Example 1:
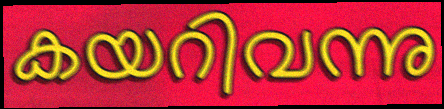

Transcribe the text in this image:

കയറിവന്നു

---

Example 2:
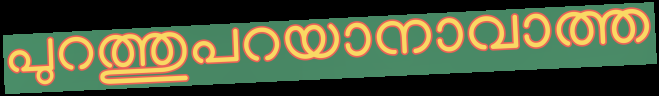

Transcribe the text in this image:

പുറത്തുപറയാനാവാത്ത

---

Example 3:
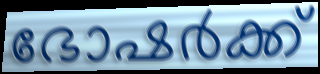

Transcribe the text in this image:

ഭോഷർക്ക്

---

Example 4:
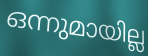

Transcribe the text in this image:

ഒന്നുമായില്ല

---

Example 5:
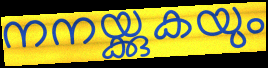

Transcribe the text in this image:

നനയ്ക്കുകയും